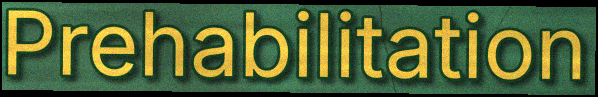
Prehabilitation